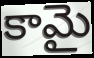
కామై